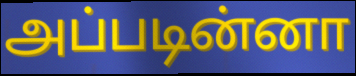
அப்படின்னா